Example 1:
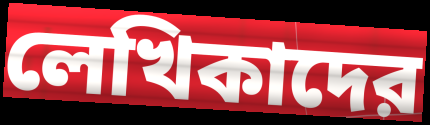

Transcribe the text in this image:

লেখিকাদের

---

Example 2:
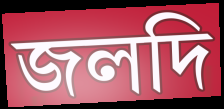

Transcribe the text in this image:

জলদি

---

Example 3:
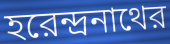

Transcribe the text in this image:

হরেন্দ্রনাথের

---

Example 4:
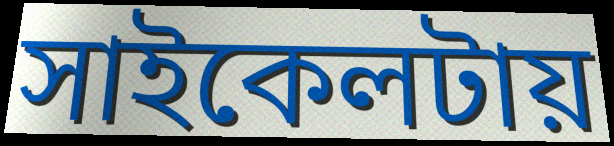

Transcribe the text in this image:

সাইকেলটায়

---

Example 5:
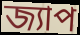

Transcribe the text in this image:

জ্যাপ